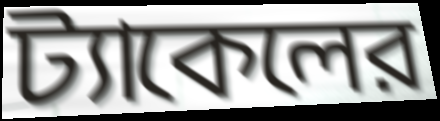
ট্যাকেলের